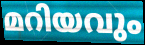
മറിയവും